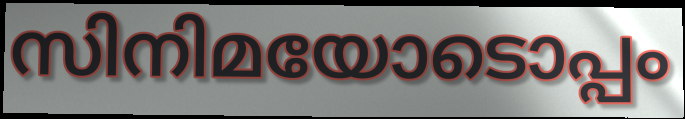
സിനിമയോടൊപ്പം